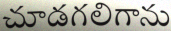
చూడగలిగాను